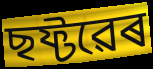
ছফ্টৱেৰ